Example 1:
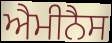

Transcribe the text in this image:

ਐਮੀਨੈਸ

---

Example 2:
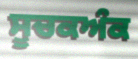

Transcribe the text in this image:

ਸੂਚਕਅੰਕ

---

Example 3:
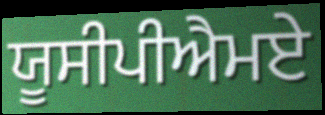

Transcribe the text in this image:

ਯੂਸੀਪੀਐਮਏ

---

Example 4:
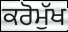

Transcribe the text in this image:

ਕਰੋਮੁੱਖ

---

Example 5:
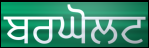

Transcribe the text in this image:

ਬਰਘੋਲਟ